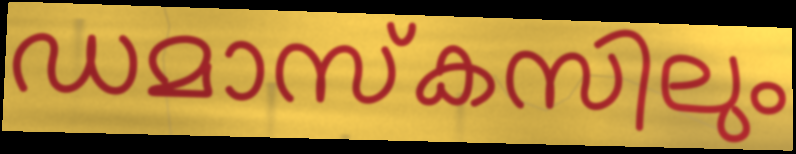
ഡമാസ്കസിലും